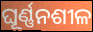
ଘୂର୍ଣ୍ଣନଶୀଳ